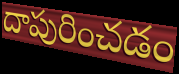
దాపురించడం